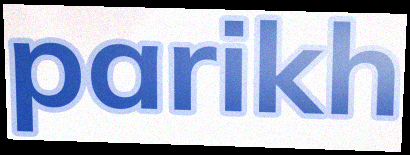
parikh